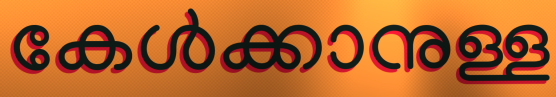
കേൾക്കാനുള്ള